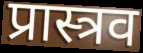
प्रास्त्रव